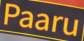
Paaru